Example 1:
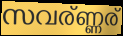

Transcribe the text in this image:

സവര്ണ്ണര്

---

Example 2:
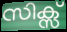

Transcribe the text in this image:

സിക്സ്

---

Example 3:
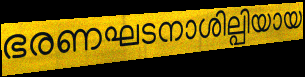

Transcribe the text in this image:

ഭരണഘടനാശില്പിയായ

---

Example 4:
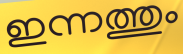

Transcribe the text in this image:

ഇന്നത്തും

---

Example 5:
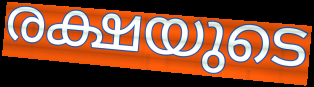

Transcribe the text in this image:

രക്ഷയുടെ